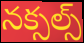
నక్సల్స్